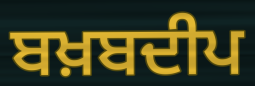
ਬਖ਼ਬਦੀਪ